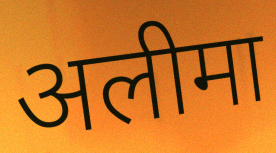
अलीमा